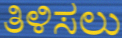
ತಿಳಿಸಲು